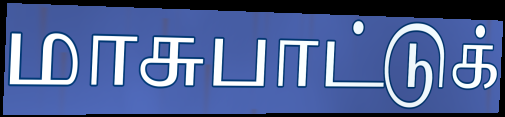
மாசுபாட்டுக்